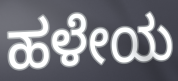
ಹಳೇಯ